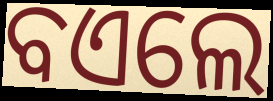
ବଏଲେ